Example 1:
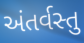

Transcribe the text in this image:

અંતર્વસ્તુ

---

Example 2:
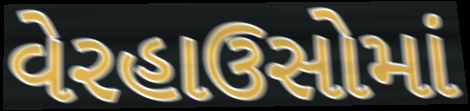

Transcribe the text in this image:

વેરહાઉસોમાં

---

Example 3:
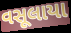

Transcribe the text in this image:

વસૂલાયા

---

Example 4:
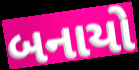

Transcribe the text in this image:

બનાયો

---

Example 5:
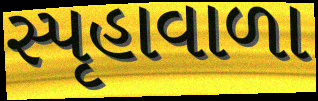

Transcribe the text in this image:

સ્પૃહાવાળા